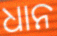
ଧାନ